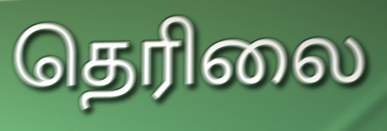
தெரிலை